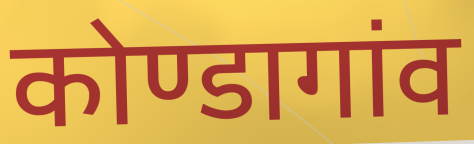
कोण्डागांव